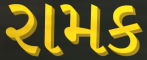
રામક